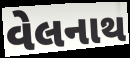
વેલનાથ